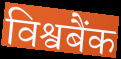
विश्वबैंक